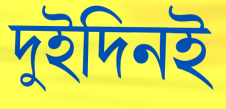
দুইদিনই